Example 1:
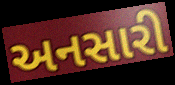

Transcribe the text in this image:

અનસારી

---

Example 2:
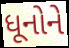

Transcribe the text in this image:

ધૂનોને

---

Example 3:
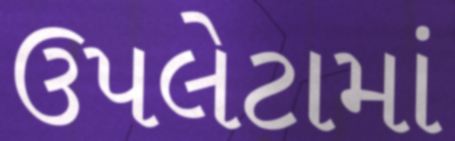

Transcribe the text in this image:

ઉપલેટામાં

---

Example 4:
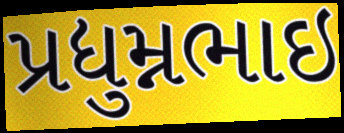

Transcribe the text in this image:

પ્રદ્યુમ્નભાઇ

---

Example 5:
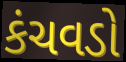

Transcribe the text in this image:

કંચવડો